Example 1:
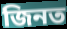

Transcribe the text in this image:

জিনত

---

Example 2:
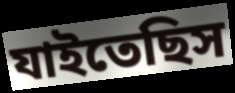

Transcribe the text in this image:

যাইতেছিস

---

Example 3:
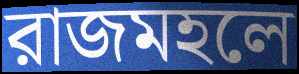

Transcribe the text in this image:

রাজমহলে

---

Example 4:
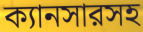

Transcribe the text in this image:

ক্যানসারসহ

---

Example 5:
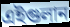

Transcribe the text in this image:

এইগুলান